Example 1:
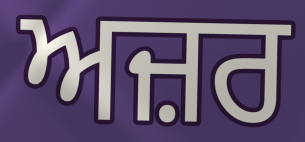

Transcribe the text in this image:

ਅਜ਼ਰ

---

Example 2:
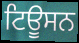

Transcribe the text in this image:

ਟਿਊਸਨ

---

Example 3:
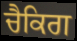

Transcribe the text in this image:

ਚੈਕਿਗ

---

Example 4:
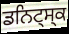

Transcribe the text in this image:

ਡਨਿਟ੍ਸ੍ਕ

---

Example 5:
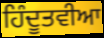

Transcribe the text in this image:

ਹਿੰਦੂਤਵੀਆ